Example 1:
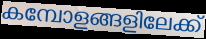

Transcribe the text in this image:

കമ്പോളങ്ങളിലേക്ക്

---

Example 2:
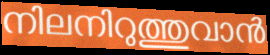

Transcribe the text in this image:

നിലനിറുത്തുവാൻ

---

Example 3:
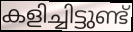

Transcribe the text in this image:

കളിച്ചിട്ടുണ്ട്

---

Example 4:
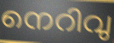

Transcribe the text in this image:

നെറിവു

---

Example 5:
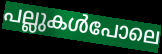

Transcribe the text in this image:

പല്ലുകൾപോലെ